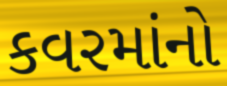
કવરમાંનો